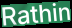
Rathin